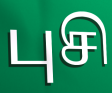
புசி